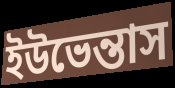
ইউভেন্তাস